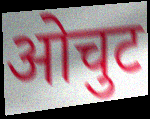
ओचुट